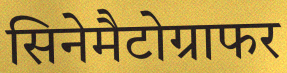
सिनेमैटोग्राफर